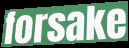
forsake